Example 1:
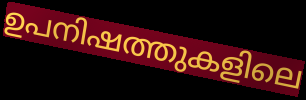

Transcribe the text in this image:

ഉപനിഷത്തുകളിലെ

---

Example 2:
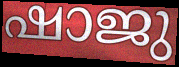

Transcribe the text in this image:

ഷാജു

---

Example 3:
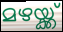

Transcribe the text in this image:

മഴയ്ക്ക്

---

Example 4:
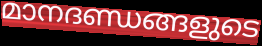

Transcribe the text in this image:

മാനദണ്ഡങ്ങളുടെ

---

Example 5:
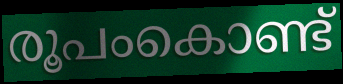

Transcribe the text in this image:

രൂപംകൊണ്ട്